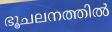
ഭൂചലനത്തിൽ